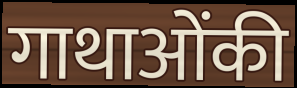
गाथाओंकी